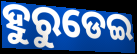
ହୁରୁଡେଇ